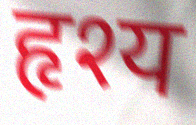
हृश्य